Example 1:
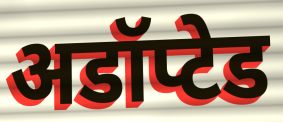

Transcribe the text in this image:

अडॉप्टेड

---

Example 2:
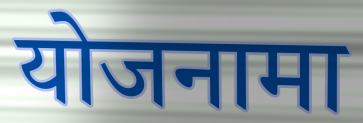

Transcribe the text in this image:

योजनामा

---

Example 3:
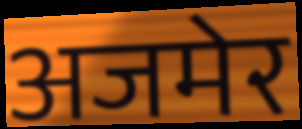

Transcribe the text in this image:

अजमेर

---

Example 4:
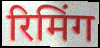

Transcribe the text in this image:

रिमिंग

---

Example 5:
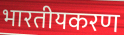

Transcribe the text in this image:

भारतीयकरण